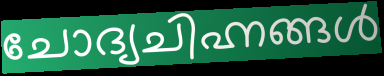
ചോദ്യചിഹ്നങ്ങൾ